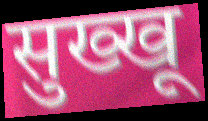
सुख्खू